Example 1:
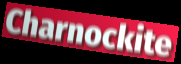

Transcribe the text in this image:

Charnockite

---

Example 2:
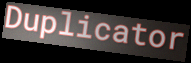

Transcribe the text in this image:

Duplicator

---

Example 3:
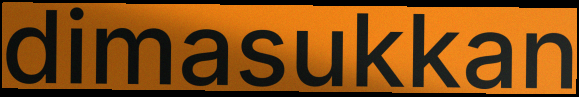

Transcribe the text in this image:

dimasukkan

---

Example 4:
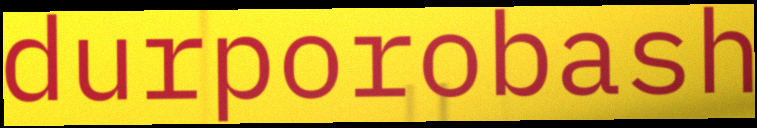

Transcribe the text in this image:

durporobash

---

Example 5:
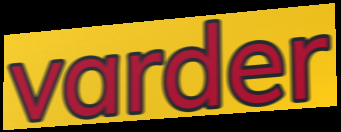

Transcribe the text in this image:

varder